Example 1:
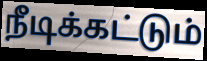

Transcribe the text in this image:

நீடிக்கட்டும்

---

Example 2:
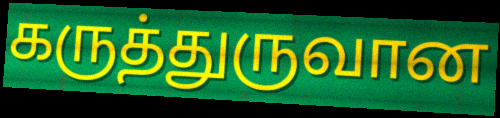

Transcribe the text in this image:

கருத்துருவான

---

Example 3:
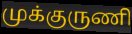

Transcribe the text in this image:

முக்குருணி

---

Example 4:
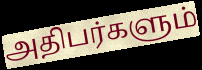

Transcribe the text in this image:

அதிபர்களும்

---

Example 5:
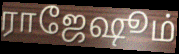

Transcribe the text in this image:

ராஜேஷூம்